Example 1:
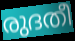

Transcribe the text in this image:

രുദതീ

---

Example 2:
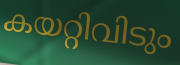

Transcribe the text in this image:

കയറ്റിവിടും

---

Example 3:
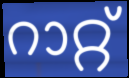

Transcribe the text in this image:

റാറ്റ്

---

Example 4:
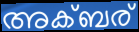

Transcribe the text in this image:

അക്ബര്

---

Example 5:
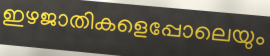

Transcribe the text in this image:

ഇഴജാതികളെപ്പോലെയും